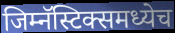
जिम्नॅस्टिक्समध्येच